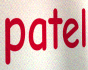
patel